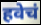
हवेचं